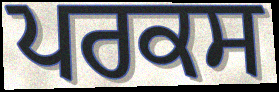
ਪਰਕਸ